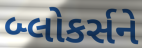
બ્લોકર્સને